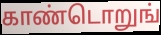
காண்டொறுங்